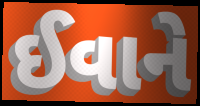
ઈવાને